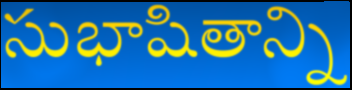
సుభాషితాన్ని